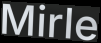
Mirle